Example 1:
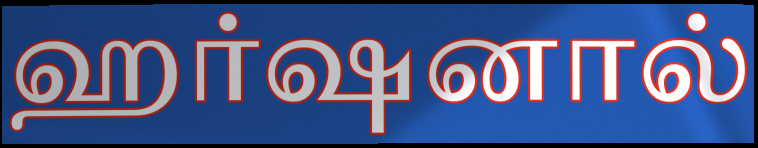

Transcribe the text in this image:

ஹர்ஷனால்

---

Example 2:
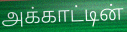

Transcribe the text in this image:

அக்காட்டின்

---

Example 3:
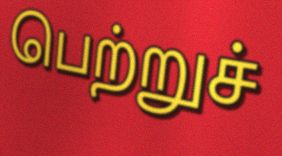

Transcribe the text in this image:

பெற்றுச்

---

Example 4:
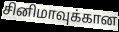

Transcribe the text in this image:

சினிமாவுக்கான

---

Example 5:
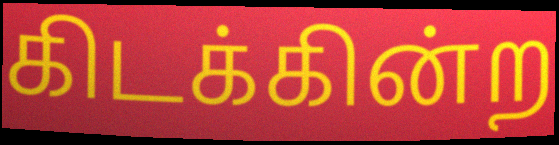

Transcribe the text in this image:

கிடக்கின்ற